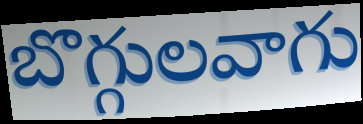
బొగ్గులవాగు